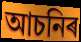
আচনিৰ